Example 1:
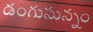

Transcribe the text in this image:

డంగుసున్నం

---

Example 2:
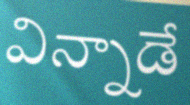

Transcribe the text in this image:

విన్నాడే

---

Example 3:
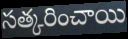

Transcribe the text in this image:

సత్కరించాయి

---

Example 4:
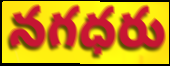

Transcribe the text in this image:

నగధరు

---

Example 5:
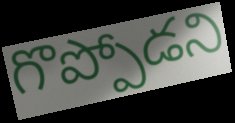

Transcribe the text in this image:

గొప్పోడని